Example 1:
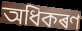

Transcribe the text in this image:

অধিকৰণ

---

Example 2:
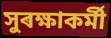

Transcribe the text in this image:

সুৰক্ষাকৰ্মী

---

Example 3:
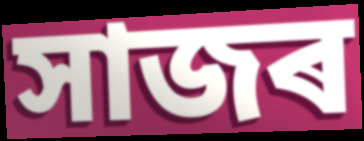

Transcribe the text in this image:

সাজৰ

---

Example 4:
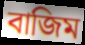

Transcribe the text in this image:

বাজিম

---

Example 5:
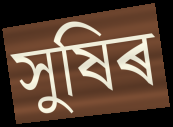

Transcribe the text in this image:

সুষিৰ